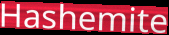
Hashemite